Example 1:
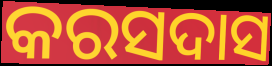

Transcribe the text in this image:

କରସଦାସ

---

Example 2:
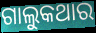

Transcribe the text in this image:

ଗାଲୁକଥାର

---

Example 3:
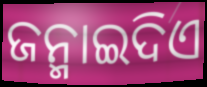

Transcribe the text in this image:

ଜନ୍ମାଇଦିଏ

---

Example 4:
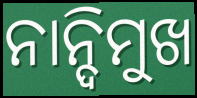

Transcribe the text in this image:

ନାନ୍ଦିମୁଖ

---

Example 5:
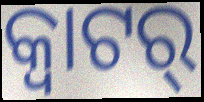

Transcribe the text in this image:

କ୍ୱାଟର୍